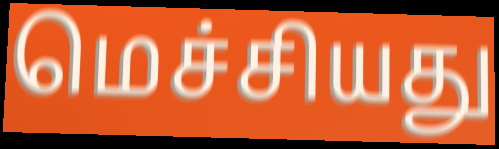
மெச்சியது